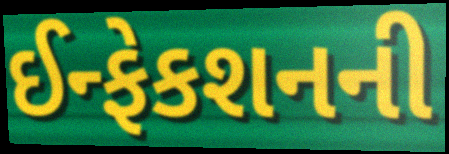
ઈન્ફેકશનની